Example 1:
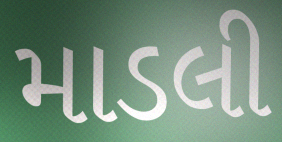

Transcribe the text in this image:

માડલી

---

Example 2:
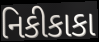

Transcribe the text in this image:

નિકીકાકા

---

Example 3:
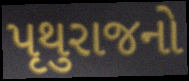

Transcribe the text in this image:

પૃથુરાજનો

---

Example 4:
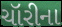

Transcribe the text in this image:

ચૉરીના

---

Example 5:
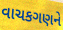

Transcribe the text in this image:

વાચકગણને